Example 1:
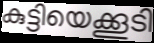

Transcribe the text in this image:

കുട്ടിയെക്കൂടി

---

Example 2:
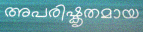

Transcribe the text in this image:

അപരിഷ്കൃതമായ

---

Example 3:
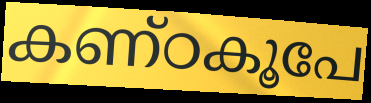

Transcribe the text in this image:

കണ്ഠകൂപേ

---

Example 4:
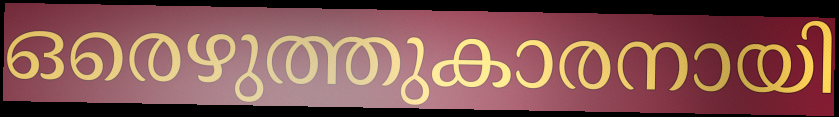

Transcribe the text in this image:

ഒരെഴുത്തുകാരനായി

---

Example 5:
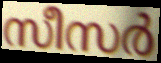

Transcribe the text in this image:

സീസർ